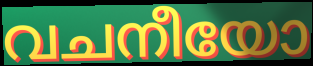
വചനീയോ